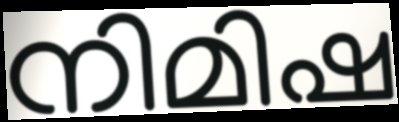
നിമിഷ